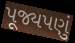
પૂજ્યપણું